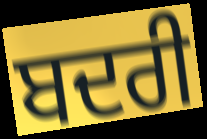
ਬਦਰੀ